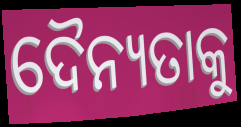
ଦୈନ୍ୟତାକୁ